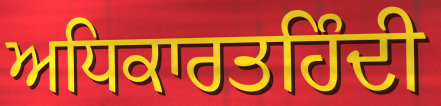
ਅਧਿਕਾਰਤਹਿੰਦੀ